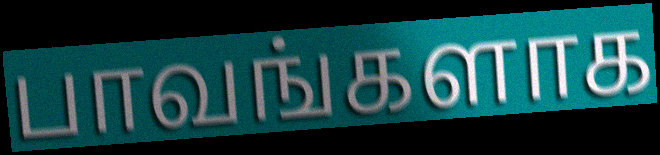
பாவங்களாக